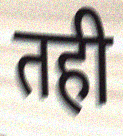
तही